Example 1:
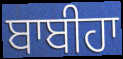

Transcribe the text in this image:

ਬਾਬੀਹਾ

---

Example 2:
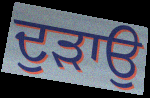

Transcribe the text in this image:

ਦੁੜਾਉ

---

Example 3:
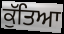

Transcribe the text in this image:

ਕੁੱਤਿਆ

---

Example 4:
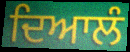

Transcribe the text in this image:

ਦਿਆਲੰ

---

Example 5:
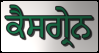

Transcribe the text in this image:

ਕੈਸਗ੍ਰੇਨ